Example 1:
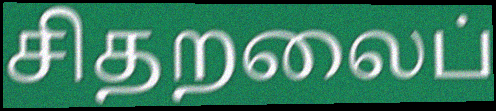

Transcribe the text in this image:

சிதறலைப்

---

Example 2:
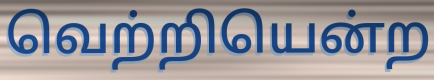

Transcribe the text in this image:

வெற்றியென்ற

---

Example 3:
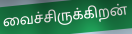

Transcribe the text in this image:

வைச்சிருக்கிறன்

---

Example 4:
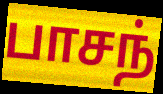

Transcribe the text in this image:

பாசந்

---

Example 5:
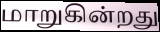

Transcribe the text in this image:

மாறுகின்றது